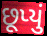
છૂપ્યું